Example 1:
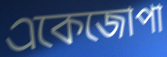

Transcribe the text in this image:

একেজোপা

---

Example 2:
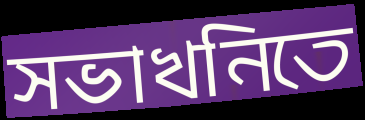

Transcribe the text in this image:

সভাখনিতে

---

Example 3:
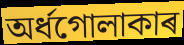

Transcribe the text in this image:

অৰ্ধগোলাকাৰ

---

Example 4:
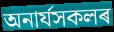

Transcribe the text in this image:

অনাৰ্যসকলৰ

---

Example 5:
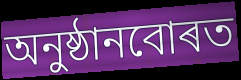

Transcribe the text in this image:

অনুষ্ঠানবোৰত